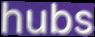
hubs